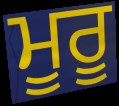
ਮੂਰੂ